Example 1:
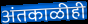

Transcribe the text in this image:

अंतकाळीही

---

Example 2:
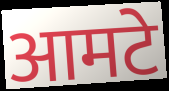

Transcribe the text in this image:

आमटे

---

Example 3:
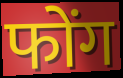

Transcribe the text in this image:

फोंग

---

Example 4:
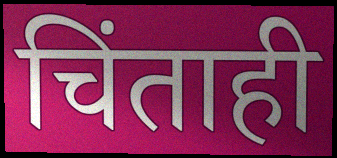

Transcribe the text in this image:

चिंताही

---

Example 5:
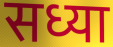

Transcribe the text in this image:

सध्या